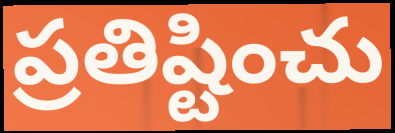
ప్రతిష్టించు